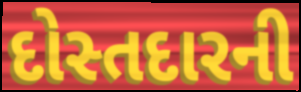
દોસ્તદારની